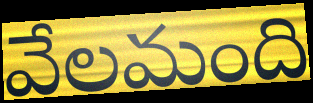
వేలమంది